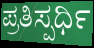
ಪ್ರತಿಸ್ಪರ್ಧಿ